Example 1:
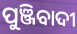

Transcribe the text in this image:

ପୁଞ୍ଜିବାଦୀ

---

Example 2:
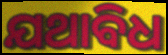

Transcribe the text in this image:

ଯଥାବିଧ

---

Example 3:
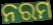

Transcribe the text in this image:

ନରମ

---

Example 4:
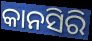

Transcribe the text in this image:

କାନସିରି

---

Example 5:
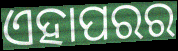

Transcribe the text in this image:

ଏହାପରର